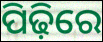
ପିଢ଼ିରେ